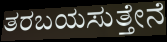
ತರಬಯಸುತ್ತೇನೆ